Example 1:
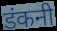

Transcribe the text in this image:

डंकनी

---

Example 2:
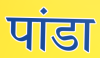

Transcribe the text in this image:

पांडा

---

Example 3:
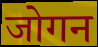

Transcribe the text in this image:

जोगन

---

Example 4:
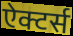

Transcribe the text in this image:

ऐक्टर्स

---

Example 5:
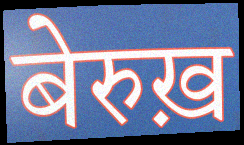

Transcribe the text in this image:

बेरुख़